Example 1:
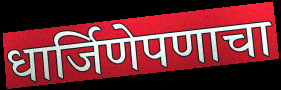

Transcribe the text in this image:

धार्जिणेपणाचा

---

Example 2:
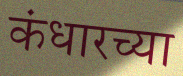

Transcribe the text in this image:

कंधारच्या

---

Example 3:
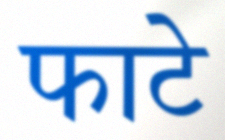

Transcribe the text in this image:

फाटे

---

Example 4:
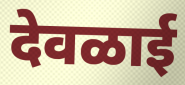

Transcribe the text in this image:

देवळाई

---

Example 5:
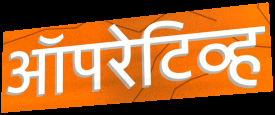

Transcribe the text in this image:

ऑपरेटिव्ह